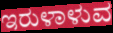
ಇರುಳಾಳುವ